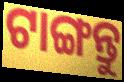
ଟାଙ୍ଗନ୍ତୁ